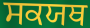
ਸਕਯਥ